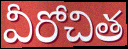
వీరోచిత